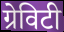
ग्रेविटी